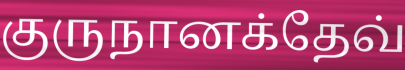
குருநானக்தேவ்